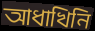
আধাখিনি